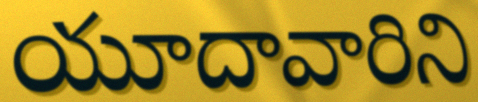
యూదావారిని